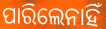
ପାରିଲେନାହିଁ